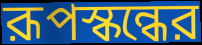
রূপস্কন্ধের